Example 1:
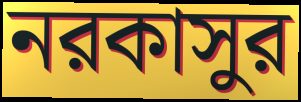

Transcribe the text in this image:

নরকাসুর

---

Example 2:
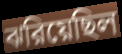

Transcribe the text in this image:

ঝরিয়েছিল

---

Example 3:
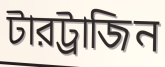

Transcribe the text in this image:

টারট্রাজিন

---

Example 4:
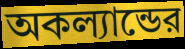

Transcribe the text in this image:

অকল্যান্ডের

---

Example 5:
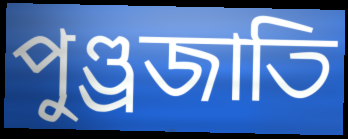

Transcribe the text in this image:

পুণ্ড্রজাতি